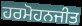
ਹਰਮੋਹਨਜੀਤ